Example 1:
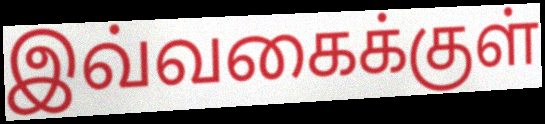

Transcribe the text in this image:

இவ்வகைக்குள்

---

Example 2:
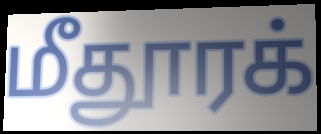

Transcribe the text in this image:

மீதூரக்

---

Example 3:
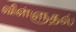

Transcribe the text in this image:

விள்ளுதல்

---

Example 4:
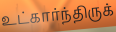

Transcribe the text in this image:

உட்கார்ந்திருக்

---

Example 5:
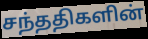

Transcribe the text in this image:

சந்ததிகளின்